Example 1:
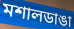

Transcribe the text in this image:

মশালডাঙা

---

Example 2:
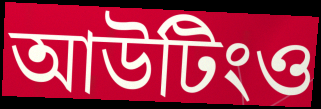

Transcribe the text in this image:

আউটিংও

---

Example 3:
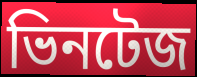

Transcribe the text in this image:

ভিনটেজ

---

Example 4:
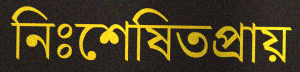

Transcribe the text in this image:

নিঃশেষিতপ্রায়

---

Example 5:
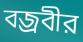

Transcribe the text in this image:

বজ্রবীর